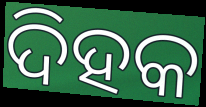
ଦିହକ